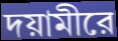
দয়ামীরে